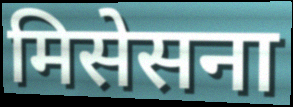
मिसेसना